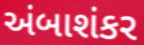
અંબાશંકર